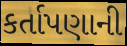
કર્તાપણાની